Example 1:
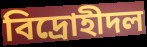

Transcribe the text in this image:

বিদ্রোহীদল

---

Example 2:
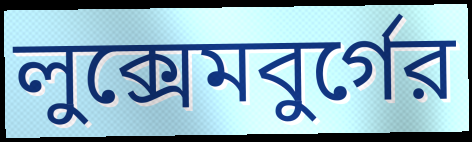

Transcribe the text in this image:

লুক্সেমবুর্গের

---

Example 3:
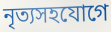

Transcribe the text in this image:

নৃত্যসহযোগে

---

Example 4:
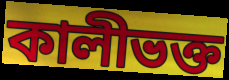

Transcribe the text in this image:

কালীভক্ত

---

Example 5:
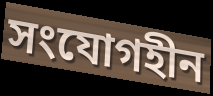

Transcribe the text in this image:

সংযোগহীন